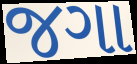
જગા